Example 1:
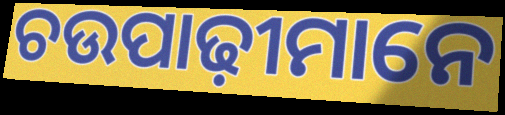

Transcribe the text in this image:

ଚଉପାଢ଼ୀମାନେ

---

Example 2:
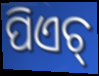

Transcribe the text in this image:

ପିଏଚ୍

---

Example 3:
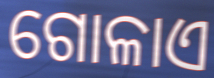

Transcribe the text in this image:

ଗୋଳାଏ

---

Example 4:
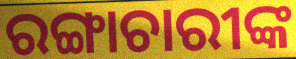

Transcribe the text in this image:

ରଙ୍ଗାଚାରୀଙ୍କ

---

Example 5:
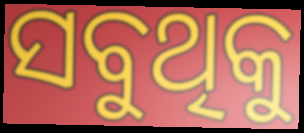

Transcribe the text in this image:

ସବୁଥିକୁ